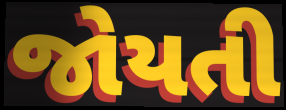
જોયતી